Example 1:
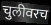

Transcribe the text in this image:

चुलीवरच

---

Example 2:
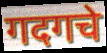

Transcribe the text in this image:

गदगचे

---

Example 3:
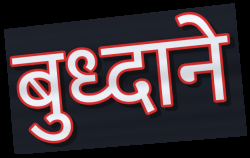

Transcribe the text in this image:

बुध्दाने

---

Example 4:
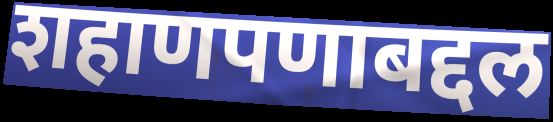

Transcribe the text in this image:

शहाणपणाबद्दल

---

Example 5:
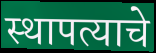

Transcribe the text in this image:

स्थापत्याचे